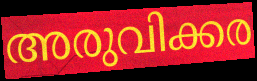
അരുവിക്കര